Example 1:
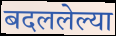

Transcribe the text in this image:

बदललेल्या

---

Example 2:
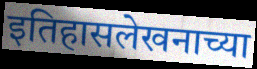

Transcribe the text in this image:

इतिहासलेखनाच्या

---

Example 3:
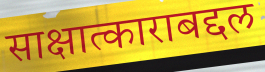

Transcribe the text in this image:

साक्षात्काराबद्दल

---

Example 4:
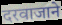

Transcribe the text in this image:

दरवाजाने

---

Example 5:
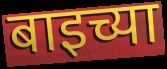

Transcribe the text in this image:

बाइच्या